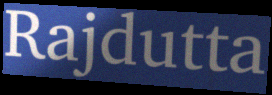
Rajdutta